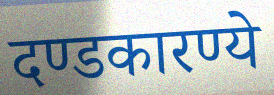
दण्डकारण्ये